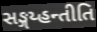
સઙ્ગય્હન્તીતિ